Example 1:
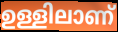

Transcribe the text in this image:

ഉള്ളിലാണ്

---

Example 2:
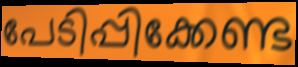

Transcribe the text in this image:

പേടിപ്പിക്കേണ്ട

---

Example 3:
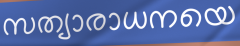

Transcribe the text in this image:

സത്യാരാധനയെ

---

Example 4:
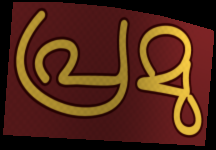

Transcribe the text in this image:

പ്രമു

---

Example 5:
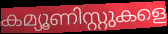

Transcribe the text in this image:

കമ്യൂണിസ്റ്റുകളെ